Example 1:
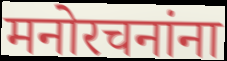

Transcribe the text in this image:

मनोरचनांना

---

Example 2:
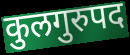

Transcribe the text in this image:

कुलगुरुपद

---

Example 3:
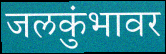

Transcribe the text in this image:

जलकुंभावर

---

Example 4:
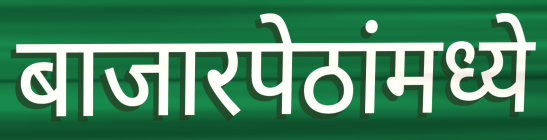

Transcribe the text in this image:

बाजारपेठांमध्ये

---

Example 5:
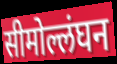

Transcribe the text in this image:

सीमोल्लंघन